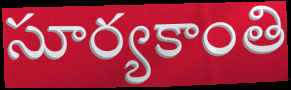
సూర్యకాంతి